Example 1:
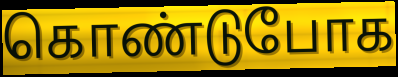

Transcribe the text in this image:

கொண்டுபோக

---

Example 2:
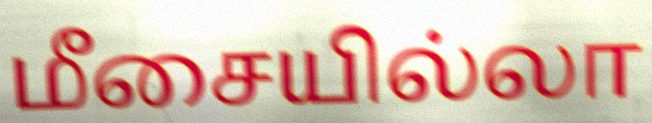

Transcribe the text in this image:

மீசையில்லா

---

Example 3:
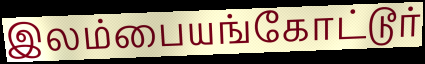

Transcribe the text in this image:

இலம்பையங்கோட்டூர்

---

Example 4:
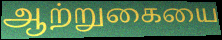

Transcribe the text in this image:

ஆற்றுகையை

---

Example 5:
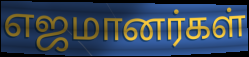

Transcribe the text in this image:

எஜமானர்கள்